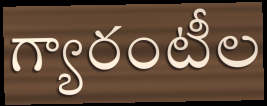
గ్యారంటీల